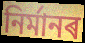
নিৰ্মানৰ